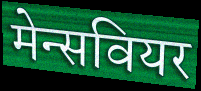
मेन्सवियर